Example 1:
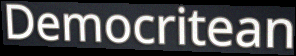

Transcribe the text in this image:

Democritean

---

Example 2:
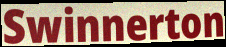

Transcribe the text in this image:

Swinnerton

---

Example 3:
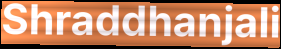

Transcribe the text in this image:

Shraddhanjali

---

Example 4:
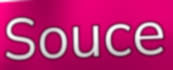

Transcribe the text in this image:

Souce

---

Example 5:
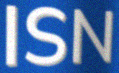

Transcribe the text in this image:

ISN